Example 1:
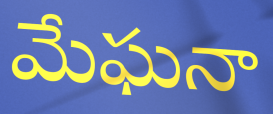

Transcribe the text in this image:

మేఘనా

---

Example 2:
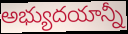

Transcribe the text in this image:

అభ్యుదయాన్నీ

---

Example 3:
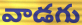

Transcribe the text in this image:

వాడగు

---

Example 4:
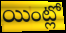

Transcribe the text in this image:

యింట్లో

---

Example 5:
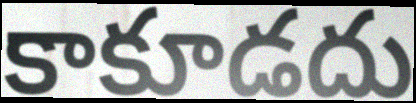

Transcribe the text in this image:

కాకూడదు